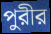
পুরীর